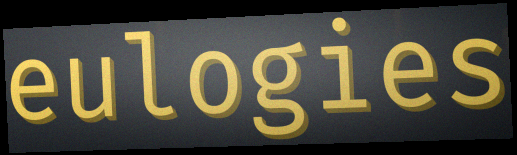
eulogies